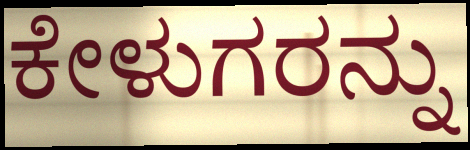
ಕೇಳುಗರನ್ನು